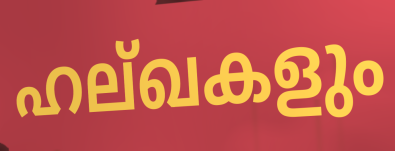
ഹല്ഖകളും